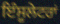
ਇੰਸੂਲੇਟਰਾਂ